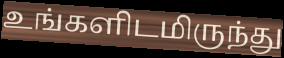
உங்களிடமிருந்து